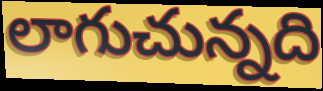
లాగుచున్నది